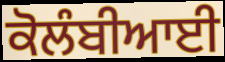
ਕੋਲੰਬੀਆਈ